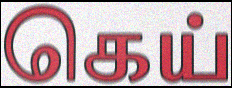
கெய்